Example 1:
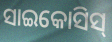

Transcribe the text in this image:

ସାଇକୋସିସ୍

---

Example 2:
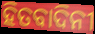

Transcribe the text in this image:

ହିତବାଦିନୀ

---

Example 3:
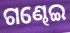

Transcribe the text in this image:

ଗଣ୍ଢେଇ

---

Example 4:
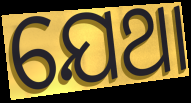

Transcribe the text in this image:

ଯେଥା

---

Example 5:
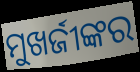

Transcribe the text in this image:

ମୁଖର୍ଜୀଙ୍କର